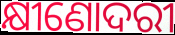
କ୍ଷୀଣୋଦରୀ